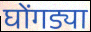
घोंगड्या